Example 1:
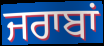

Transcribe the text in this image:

ਜਰਾਬਾਂ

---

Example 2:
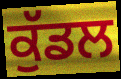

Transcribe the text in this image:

ਕੁੱਡਲ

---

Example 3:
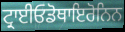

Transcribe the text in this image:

ਟ੍ਰਾਈਓਡੋਥਾਇਰੋਨਿਨ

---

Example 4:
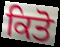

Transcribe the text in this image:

ਕਿਤੋ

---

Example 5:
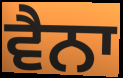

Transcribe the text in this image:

ਵੈਨਾ